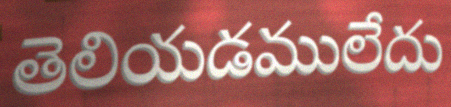
తెలియడములేదు